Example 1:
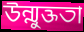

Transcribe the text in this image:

উন্মুক্ততা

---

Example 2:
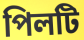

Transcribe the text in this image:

পিলটি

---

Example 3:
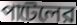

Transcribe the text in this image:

পাটেলের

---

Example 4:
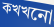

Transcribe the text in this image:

কখখনো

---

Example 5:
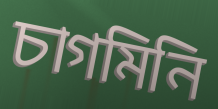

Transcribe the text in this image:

চাগমিনি